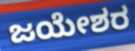
ಜಯೇಶರ